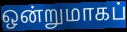
ஒன்றுமாகப்